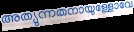
അത്യുന്നതനായുള്ളോവേ